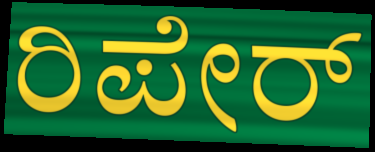
ರಿಪೇರ್